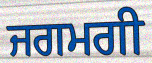
ਜਗਮਗੀ